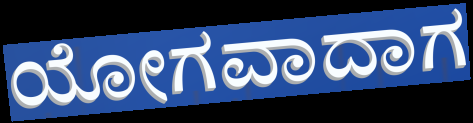
ಯೋಗವಾದಾಗ